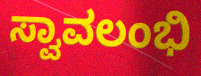
ಸ್ವಾವಲಂಭಿ